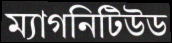
ম্যাগনিটিউড